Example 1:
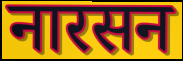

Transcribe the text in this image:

नारसन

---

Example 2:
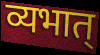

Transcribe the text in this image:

व्यभात्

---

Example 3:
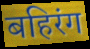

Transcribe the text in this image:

बहिरंग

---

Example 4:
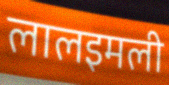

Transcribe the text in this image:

लालइमली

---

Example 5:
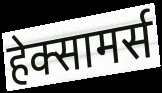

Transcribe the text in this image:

हेक्सामर्स